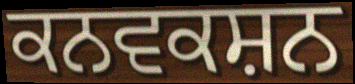
ਕਨਵਕਸ਼ਨ